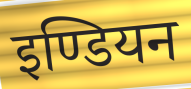
इण्डियन